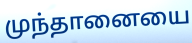
முந்தானையை